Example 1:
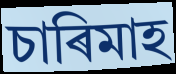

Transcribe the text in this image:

চাৰিমাহ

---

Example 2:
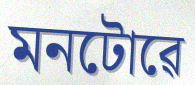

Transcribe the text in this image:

মনটোৱে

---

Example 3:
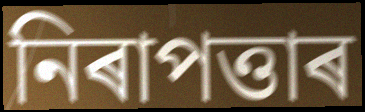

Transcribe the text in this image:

নিৰাপত্তাৰ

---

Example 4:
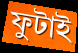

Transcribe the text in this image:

ফুটাই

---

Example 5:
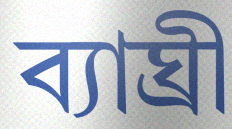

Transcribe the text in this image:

ব্যাঘ্ৰী